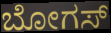
ಬೋಗಸ್